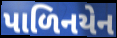
પાળિનયેન